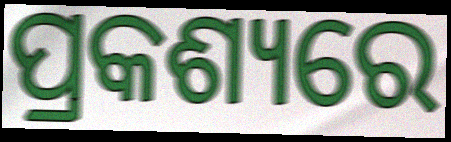
ପ୍ରକଶ୍ୟରେ